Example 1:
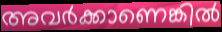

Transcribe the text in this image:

അവർക്കാണെങ്കിൽ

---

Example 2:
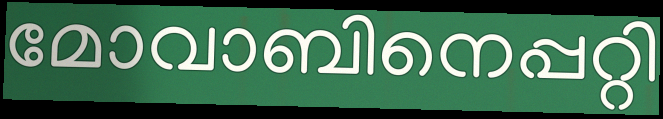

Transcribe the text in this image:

മോവാബിനെപ്പറ്റി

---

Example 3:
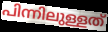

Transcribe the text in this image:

പിന്നിലുള്ളത്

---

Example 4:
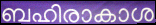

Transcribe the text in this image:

ബഹിരാകാശ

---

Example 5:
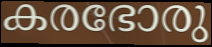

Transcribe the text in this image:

കരഭോരു